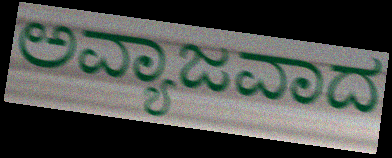
ಅವ್ಯಾಜವಾದ